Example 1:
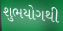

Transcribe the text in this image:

શુભયોગથી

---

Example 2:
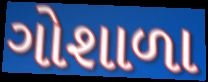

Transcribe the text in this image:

ગોશાળા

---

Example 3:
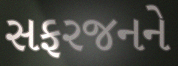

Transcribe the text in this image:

સફરજનને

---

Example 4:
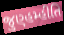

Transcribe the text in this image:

જુણ્હમ્હીતિ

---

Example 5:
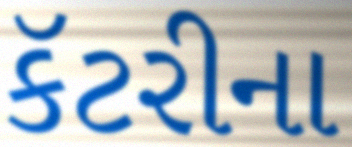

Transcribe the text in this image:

કૅટરીના